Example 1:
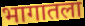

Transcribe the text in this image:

भागातला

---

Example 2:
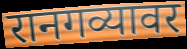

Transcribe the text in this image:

रानगव्यावर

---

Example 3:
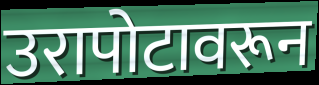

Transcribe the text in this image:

उरापोटावरून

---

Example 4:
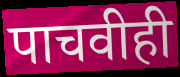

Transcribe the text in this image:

पाचवीही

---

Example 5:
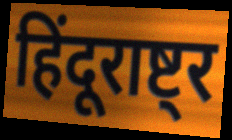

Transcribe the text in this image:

हिंदूराष्ट्र